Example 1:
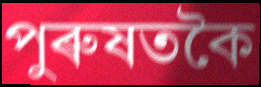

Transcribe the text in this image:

পুৰুষতকৈ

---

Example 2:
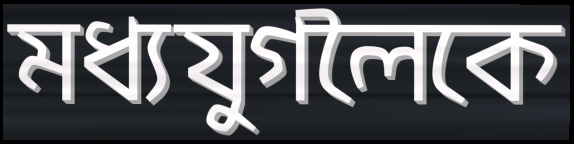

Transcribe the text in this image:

মধ্যযুগলৈকে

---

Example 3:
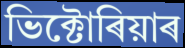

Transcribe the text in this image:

ভিক্টোৰিয়াৰ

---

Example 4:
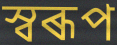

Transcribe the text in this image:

স্বৰূপ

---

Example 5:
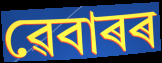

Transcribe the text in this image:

ৱেবাৰৰ